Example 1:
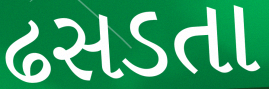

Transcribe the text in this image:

ઢસડતા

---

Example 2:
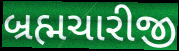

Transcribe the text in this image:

બ્રહ્મચારીજી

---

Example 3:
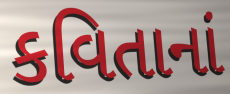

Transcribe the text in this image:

કવિતાનાં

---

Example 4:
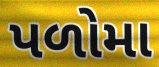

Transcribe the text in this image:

પળોમા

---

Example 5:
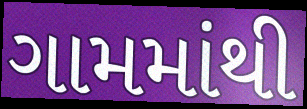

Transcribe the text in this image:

ગામમાંથી